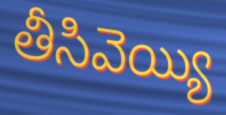
తీసివెయ్యి